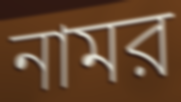
নামর